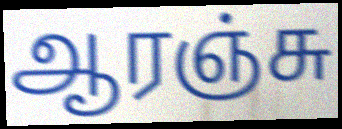
ஆரஞ்சு